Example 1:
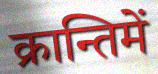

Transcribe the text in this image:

क्रान्तिमें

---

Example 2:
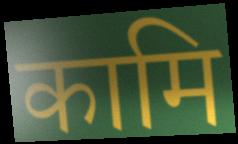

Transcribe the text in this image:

कामि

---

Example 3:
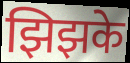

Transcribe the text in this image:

झिझके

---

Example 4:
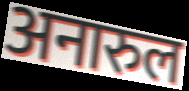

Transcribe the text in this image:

अनारुल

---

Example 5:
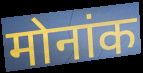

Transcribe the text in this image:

मोनांक